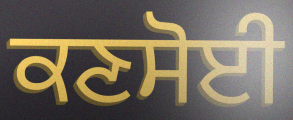
ਕਣਸੋਈ